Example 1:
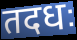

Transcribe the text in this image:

तदधः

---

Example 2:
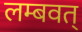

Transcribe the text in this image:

लम्बवत्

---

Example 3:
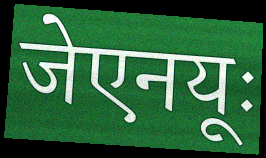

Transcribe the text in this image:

जेएनयूः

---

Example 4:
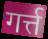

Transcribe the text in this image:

गर्त्त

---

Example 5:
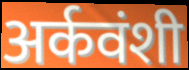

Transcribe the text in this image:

अर्कवंशी